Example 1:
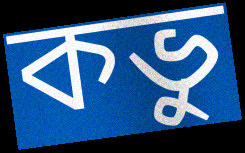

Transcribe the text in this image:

কভু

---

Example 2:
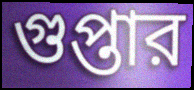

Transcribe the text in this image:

গুপ্তার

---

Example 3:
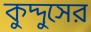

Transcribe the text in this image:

কুদ্দুসের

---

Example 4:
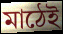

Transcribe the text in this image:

মাঠেই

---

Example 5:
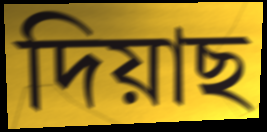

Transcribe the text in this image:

দিয়াছ